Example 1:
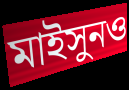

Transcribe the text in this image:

মাইসুনও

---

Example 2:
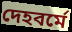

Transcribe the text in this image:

দেহবর্মে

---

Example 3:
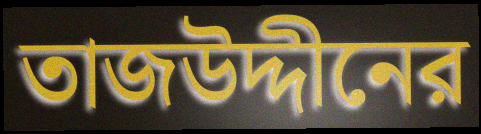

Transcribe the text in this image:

তাজউদ্দীনের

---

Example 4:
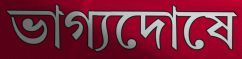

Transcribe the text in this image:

ভাগ্যদোষে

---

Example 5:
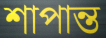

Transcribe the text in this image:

শাপান্ত